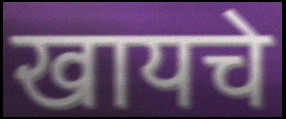
खायचे